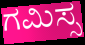
ಗಮಿಸ್ಸ